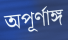
অপূর্ণাঙ্গ